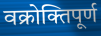
वक्रोक्तिपूर्ण